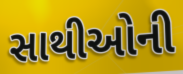
સાથીઓની